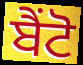
ਬੈਂਟੋ